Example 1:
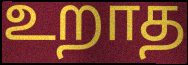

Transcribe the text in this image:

உறாத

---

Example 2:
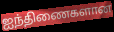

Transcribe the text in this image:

ஐந்திணைகளான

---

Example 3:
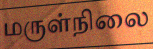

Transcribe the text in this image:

மருள்நிலை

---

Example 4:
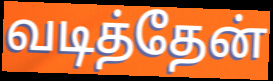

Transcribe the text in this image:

வடித்தேன்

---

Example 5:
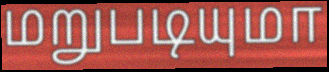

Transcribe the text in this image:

மறுபடியுமா